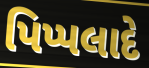
પિપ્પલાદે